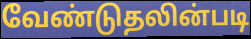
வேண்டுதலின்படி